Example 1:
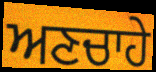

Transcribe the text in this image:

ਅਣਚਾਹੇ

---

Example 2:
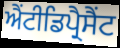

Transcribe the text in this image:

ਐਂਟੀਡਿਪ੍ਰੈਸੈਂਟ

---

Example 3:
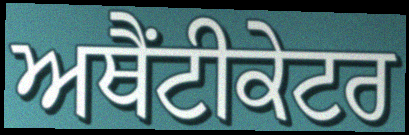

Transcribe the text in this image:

ਅਥੈਂਟੀਕੇਟਰ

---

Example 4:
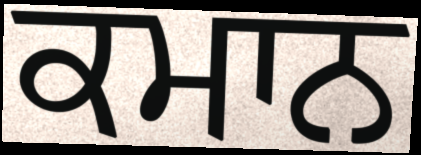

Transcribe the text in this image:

ਕਮਾਨ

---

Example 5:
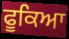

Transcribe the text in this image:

ਫੂਕਿਆ